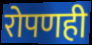
रोपणही